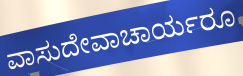
ವಾಸುದೇವಾಚಾರ್ಯರೂ